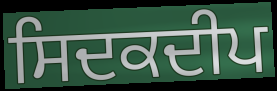
ਸਿਦਕਦੀਪ